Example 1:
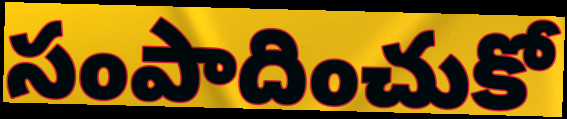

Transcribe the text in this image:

సంపాదించుకో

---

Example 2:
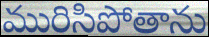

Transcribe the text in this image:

మురిసిపోతాను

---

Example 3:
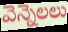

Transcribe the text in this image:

వెన్నెలలు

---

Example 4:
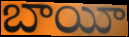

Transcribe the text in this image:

బాయీ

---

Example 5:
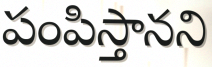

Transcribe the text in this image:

పంపిస్తానని